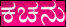
ಕಚನು